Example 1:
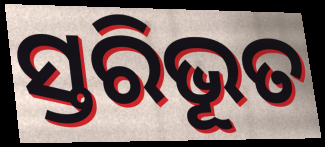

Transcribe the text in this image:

ସ୍ତରିଭୂତ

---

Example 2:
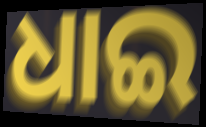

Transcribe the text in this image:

ଧାଇ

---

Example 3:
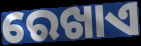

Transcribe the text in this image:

ରେଖାଏ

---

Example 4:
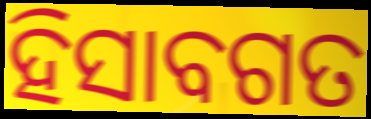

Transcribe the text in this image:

ହିସାବଗତ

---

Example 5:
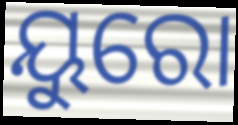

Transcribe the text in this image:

ୟୁରୋ